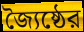
জ্যৈষ্ঠের